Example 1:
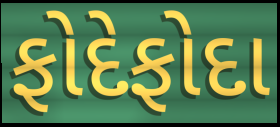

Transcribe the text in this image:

ફોદેફોદા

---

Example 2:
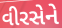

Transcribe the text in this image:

વીરસેને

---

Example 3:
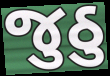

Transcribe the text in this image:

જુઠુ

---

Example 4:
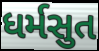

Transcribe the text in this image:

ધર્મસુત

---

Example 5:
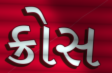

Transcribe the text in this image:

ક્રોસ